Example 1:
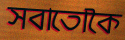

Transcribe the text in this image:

সবাতোকৈ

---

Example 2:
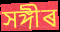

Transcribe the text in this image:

সঙ্গীৰ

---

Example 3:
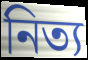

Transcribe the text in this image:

নিত্য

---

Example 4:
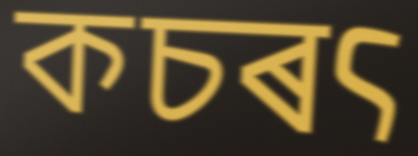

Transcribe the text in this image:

কচৰৎ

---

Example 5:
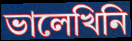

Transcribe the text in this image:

ভালেখিনি